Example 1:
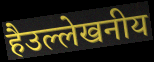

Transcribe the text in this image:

हैउल्लेखनीय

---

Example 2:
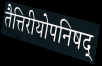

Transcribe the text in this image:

तैत्तिरीयोपनिषद्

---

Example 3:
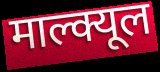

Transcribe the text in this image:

माल्क्यूल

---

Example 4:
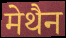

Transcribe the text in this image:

मेथैन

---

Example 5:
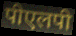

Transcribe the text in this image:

पीएलपी